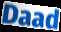
Daad